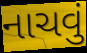
નાચવું